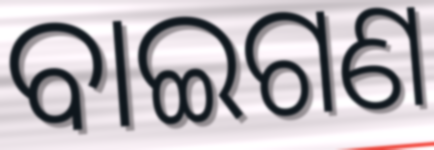
ବାଇଗଣ